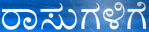
ರಾಸುಗಳಿಗೆ